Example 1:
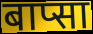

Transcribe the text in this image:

बाप्सा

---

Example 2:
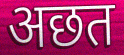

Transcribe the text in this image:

अछत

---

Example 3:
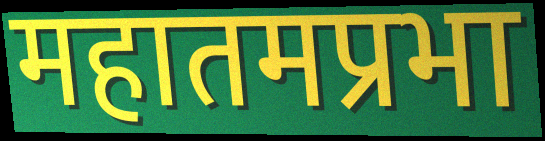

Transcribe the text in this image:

महातमप्रभा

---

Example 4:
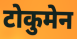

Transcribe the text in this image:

टोकुमेन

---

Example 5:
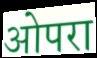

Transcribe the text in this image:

ओपरा